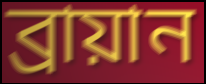
ব্রায়ান